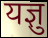
यज्ञु